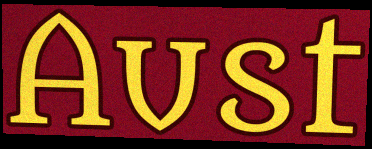
Aust